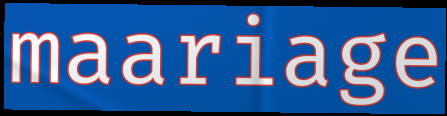
maariage